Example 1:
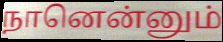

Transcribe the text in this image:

நானென்னும்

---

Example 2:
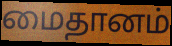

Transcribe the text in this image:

மைதானம்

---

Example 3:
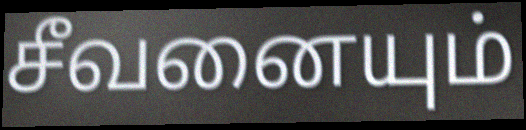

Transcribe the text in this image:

சீவனையும்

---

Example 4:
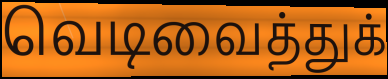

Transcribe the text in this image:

வெடிவைத்துக்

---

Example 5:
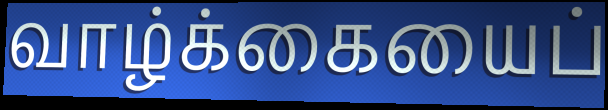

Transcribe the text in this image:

வாழ்க்கையைப்